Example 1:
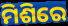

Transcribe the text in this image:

ମିଶିରେ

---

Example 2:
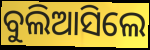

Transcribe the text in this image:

ବୁଲିଆସିଲେ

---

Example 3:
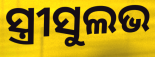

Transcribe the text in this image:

ସ୍ତ୍ରୀସୁଲଭ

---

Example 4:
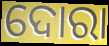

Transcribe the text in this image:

ଦୋରା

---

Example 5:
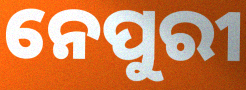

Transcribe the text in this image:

ନେପୁରୀ